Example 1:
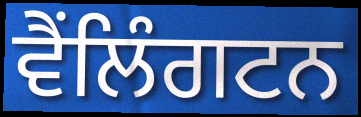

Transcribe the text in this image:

ਵੈਂਲਿੰਗਟਨ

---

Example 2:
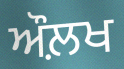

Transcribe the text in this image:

ਔਲ਼ਖ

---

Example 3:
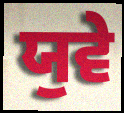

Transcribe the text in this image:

ਯੁਵੇ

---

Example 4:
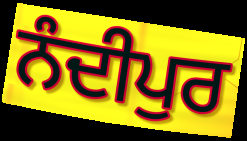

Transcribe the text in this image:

ਨੰਦੀਪੁਰ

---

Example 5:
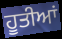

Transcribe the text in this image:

ਹੂਤੀਆਂ